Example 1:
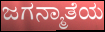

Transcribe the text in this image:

ಜಗನ್ಮಾತೆಯ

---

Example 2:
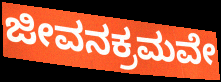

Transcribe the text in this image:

ಜೀವನಕ್ರಮವೇ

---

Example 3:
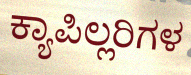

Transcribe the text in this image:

ಕ್ಯಾಪಿಲ್ಲರಿಗಳ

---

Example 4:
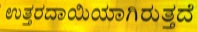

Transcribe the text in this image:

ಉತ್ತರದಾಯಿಯಾಗಿರುತ್ತದೆ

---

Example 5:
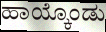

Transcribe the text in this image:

ಹಾಯ್ಕೊಂಡು